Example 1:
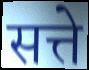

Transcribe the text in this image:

सत्ते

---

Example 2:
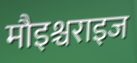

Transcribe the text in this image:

मौइश्चराइज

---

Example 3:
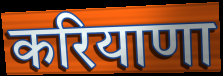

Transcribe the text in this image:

करियाणा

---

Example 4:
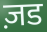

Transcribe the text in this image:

ज़ड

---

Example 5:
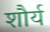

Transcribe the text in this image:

शौर्य